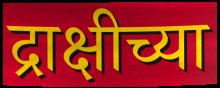
द्राक्षीच्या